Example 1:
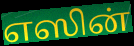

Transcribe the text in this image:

எஸின்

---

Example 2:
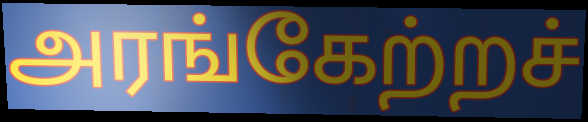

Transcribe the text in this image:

அரங்கேற்றச்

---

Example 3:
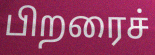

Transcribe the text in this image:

பிறரைச்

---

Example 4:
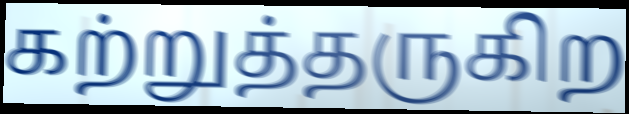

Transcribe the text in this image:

கற்றுத்தருகிற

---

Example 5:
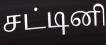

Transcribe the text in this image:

சட்டினி